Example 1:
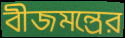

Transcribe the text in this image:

বীজমন্ত্রের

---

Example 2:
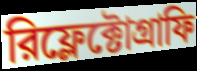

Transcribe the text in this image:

রিফ্লেক্টোগ্রাফি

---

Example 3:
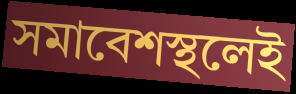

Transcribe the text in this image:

সমাবেশস্থলেই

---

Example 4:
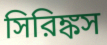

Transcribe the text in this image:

সিরিঙ্কস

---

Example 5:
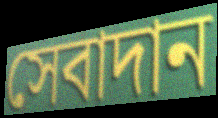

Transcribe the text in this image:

সেবাদান